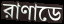
রাণাডে